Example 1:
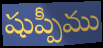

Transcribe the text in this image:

షుప్పీము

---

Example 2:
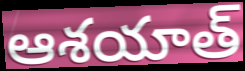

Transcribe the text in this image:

ఆశయాత్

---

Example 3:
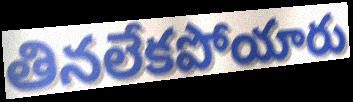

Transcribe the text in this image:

తినలేకపోయారు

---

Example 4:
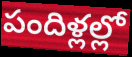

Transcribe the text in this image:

పందిళ్లల్లో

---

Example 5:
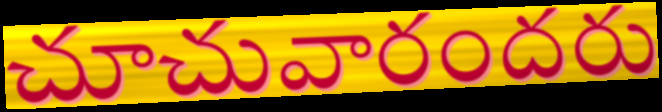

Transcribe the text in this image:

చూచువారందరు